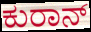
ಕುರಾನ್